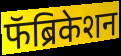
फॅब्रिकेशन